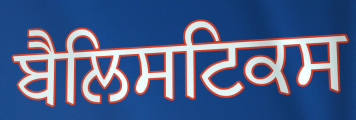
ਬੈਲਿਸਟਿਕਸ